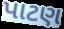
પાટણ